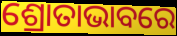
ଶ୍ରୋତାଭାବରେ